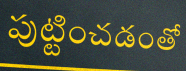
పుట్టించడంతో